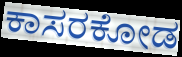
ಕಾಸರಕೋಡ